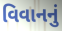
વિવાનનું